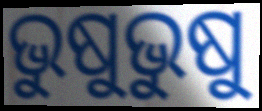
ଭୁଷୁଭୁଷୁ